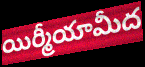
యిర్మీయామీద